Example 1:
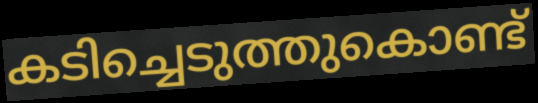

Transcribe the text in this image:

കടിച്ചെടുത്തുകൊണ്ട്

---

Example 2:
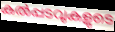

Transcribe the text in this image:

കൽപ്പടവുകളുടെ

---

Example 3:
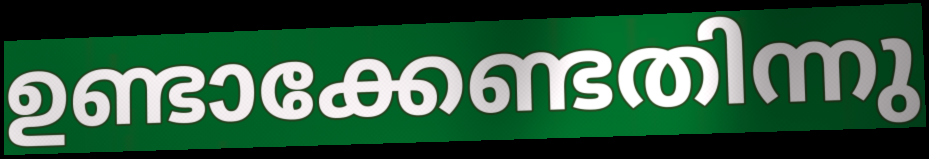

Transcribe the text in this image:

ഉണ്ടാക്കേണ്ടതിന്നു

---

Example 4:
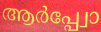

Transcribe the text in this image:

ആർപ്പ്വോ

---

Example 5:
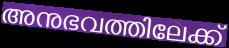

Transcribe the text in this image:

അനുഭവത്തിലേക്ക്